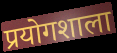
प्रयोगशाला